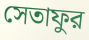
সেতাফুর